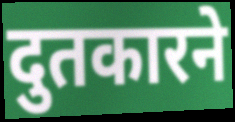
दुतकारने